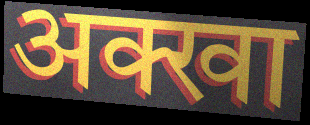
अक्खा